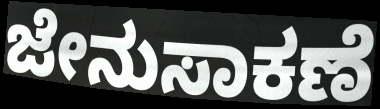
ಜೇನುಸಾಕಣೆ